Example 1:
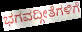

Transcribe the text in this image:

ಭಗವದ್ಗೀತೆಗಳಿಗೆ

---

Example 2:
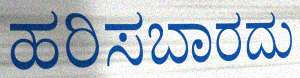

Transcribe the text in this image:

ಹರಿಸಬಾರದು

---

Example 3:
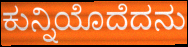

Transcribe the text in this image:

ಕುನ್ನಿಯೊದೆದನು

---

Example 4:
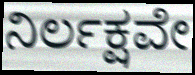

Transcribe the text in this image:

ನಿರ್ಲಕ್ಷವೇ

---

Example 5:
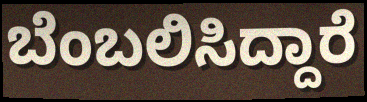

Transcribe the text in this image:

ಬೆಂಬಲಿಸಿದ್ದಾರೆ